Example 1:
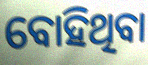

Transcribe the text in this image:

ବୋହିଥିବା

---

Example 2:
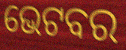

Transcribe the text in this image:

ଭେଟବର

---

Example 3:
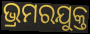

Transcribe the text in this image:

ଭ୍ରମରଯୁକ୍ତ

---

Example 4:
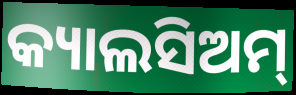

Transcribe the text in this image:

କ୍ୟାଲସିଅମ୍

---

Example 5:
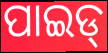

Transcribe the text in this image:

ପାଇଡ୍